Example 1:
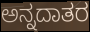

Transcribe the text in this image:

ಅನ್ನದಾತರ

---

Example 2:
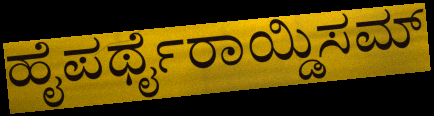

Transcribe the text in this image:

ಹೈಪರ್ಥೈರಾಯ್ಡಿಸಮ್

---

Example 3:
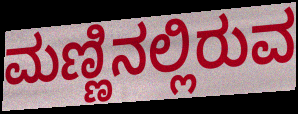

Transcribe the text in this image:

ಮಣ್ಣಿನಲ್ಲಿರುವ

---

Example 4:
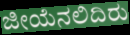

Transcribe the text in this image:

ಜೀಯೆನಲಿದಿರು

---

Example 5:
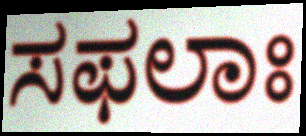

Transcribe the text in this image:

ಸಫಲಾಃ